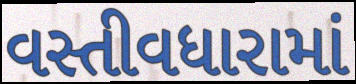
વસ્તીવધારામાં